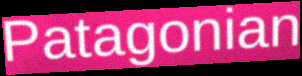
Patagonian